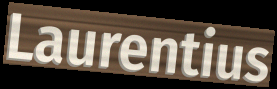
Laurentius